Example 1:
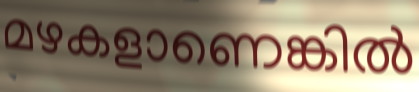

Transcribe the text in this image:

മഴകളാണെങ്കിൽ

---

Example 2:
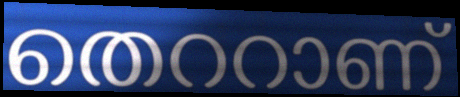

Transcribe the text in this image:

തെററാണ്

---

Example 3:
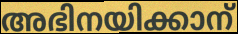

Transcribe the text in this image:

അഭിനയിക്കാന്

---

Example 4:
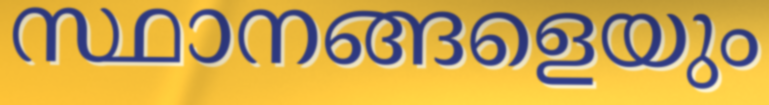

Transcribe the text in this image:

സ്ഥാനങ്ങളെയും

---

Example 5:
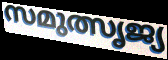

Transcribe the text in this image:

സമുത്സൃജ്യ